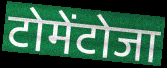
टोमेंटोजा